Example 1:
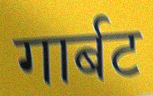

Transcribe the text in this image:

गार्बट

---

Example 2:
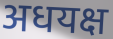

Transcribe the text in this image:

अधयक्ष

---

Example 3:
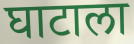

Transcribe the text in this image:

घाटाला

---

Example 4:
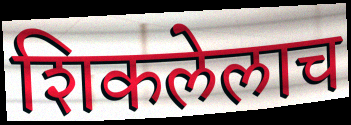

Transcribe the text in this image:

शिकलेलाच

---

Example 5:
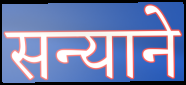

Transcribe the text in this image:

सन्याने